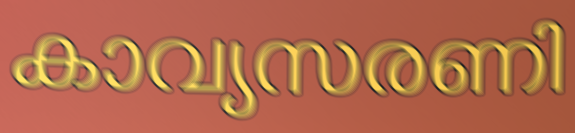
കാവ്യസരണി